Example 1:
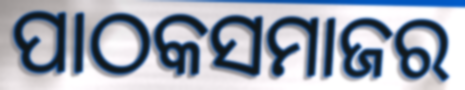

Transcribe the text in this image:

ପାଠକସମାଜର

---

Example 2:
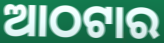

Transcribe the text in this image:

ଆଠଟାର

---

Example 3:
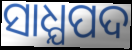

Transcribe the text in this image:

ସାଧ୍ଯପଦ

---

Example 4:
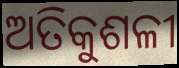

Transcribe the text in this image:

ଅତିକୁଶଳୀ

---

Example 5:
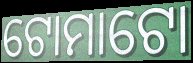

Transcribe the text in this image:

ଟୋମାଟୋ